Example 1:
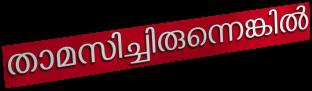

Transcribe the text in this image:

താമസിച്ചിരുന്നെങ്കിൽ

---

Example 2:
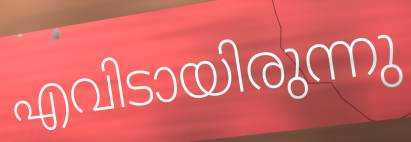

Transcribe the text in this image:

എവിടായിരുന്നു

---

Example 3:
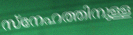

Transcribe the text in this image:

സ്നേഹത്തിനുള്ള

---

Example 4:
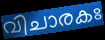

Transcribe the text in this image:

വിചാരകഃ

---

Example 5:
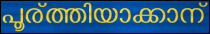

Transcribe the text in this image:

പൂര്ത്തിയാക്കാന്